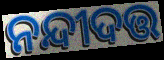
ନନ୍ଦୀଦତ୍ତ